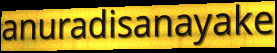
anuradisanayake